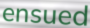
ensued